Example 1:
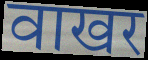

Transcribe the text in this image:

वाखर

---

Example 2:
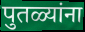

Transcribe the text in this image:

पुतळ्यांना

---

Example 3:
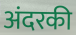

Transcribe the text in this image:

अंदरकी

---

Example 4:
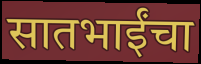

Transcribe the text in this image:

सातभाईंचा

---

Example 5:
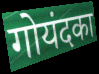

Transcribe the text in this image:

गोयंदका